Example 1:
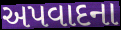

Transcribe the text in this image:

અપવાદના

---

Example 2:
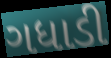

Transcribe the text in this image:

ગધાડી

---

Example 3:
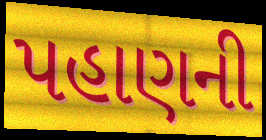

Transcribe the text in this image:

પહાણની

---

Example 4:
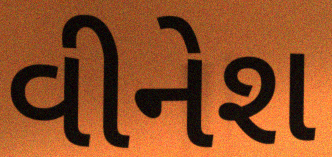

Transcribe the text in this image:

વીનેશ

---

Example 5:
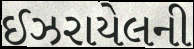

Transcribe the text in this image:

ઈઝરાયેલની